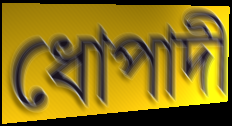
ধোপাদী